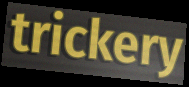
trickery